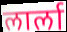
लार्ला